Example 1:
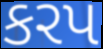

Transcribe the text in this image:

કરપ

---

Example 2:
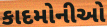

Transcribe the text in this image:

કાદમોનીઓ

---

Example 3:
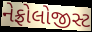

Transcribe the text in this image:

નેફ્રોલોજીસ્ટ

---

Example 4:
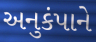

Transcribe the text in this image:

અનુકંપાને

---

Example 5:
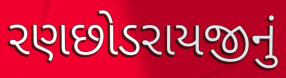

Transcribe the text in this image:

રણછોડરાયજીનું